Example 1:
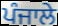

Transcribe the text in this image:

ਪੰਜਾਲੇ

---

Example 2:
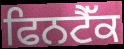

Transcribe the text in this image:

ਫਿਨਟੈੱਕ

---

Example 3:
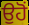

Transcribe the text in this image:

ਉਹੋਂ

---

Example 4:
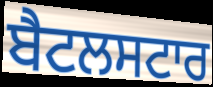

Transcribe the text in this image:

ਬੈਟਲਸਟਾਰ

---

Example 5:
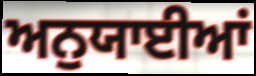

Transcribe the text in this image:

ਅਨੁਯਾਈਆਂ